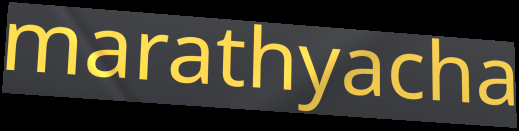
marathyacha